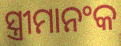
ସ୍ତ୍ରୀମାନଂକ